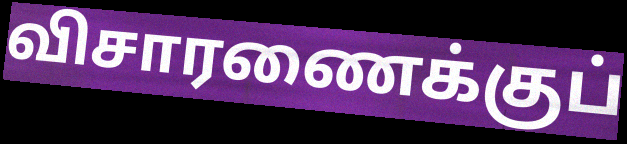
விசாரணைக்குப்